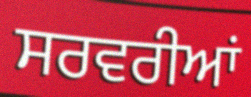
ਸਰਵਰੀਆਂ